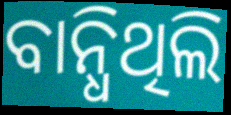
ବାନ୍ଧିଥିଲି